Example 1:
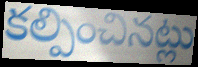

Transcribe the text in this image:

కల్పించినట్లు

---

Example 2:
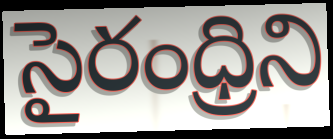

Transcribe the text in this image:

సైరంధ్రిని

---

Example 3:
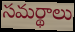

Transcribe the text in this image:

సమర్థాలు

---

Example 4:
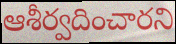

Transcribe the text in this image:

ఆశీర్వదించారని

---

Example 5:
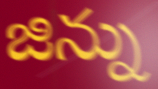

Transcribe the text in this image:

జిన్ను